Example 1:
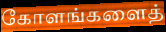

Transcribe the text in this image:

கோளங்களைத்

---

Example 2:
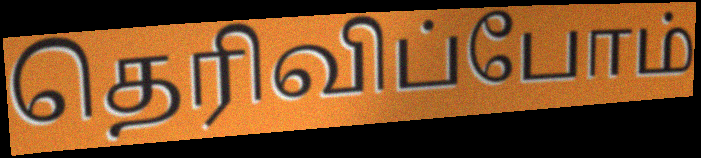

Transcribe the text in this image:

தெரிவிப்போம்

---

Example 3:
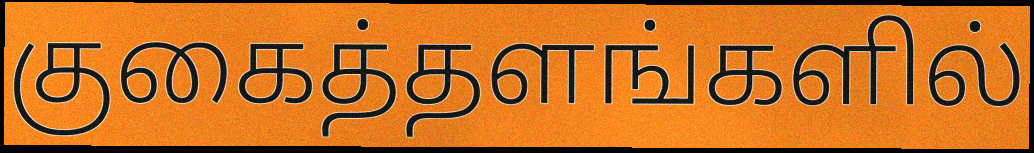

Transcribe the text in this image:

குகைத்தளங்களில்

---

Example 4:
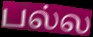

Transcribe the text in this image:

பல்ல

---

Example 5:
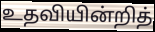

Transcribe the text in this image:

உதவியின்றித்